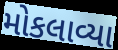
મોકલાવ્યા